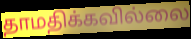
தாமதிக்கவில்லை